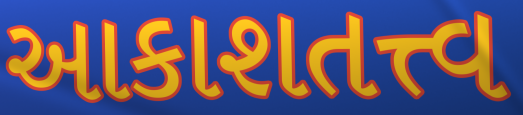
આકાશતત્ત્વ